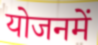
योजनमें